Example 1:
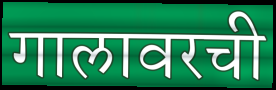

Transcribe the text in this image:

गालावरची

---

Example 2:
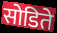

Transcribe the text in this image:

सोडिते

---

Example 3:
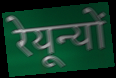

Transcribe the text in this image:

रेयून्यों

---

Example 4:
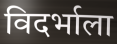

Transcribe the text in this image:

विदर्भाला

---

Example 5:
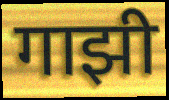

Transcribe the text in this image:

गाझी